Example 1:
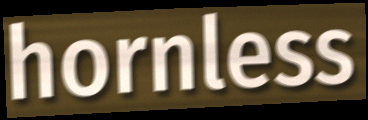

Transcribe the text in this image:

hornless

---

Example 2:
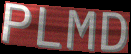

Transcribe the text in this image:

PLMD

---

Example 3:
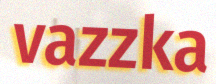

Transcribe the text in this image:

vazzka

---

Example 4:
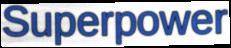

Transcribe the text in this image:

Superpower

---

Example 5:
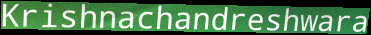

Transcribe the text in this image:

Krishnachandreshwara